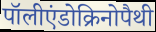
पॉलीएंडोक्रिनोपैथी